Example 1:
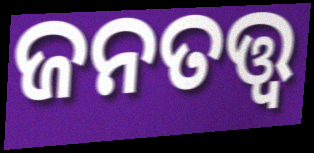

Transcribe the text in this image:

ଜନତତ୍ତ୍ୱ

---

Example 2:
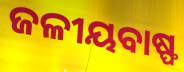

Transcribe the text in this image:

ଜଳୀୟବାଷ୍ଫ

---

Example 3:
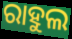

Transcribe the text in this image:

ରାହୁଲ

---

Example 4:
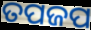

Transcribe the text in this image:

ତପଜପ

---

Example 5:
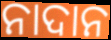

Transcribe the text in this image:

ନାଦାନ